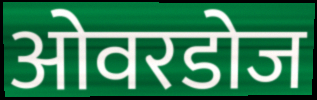
ओवरडोज